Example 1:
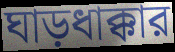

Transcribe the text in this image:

ঘাড়ধাক্কার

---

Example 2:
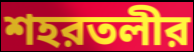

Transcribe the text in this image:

শহরতলীর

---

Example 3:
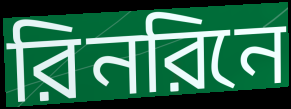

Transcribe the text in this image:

রিনরিনে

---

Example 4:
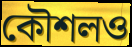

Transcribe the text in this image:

কৌশলও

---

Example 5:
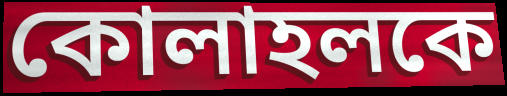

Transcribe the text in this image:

কোলাহলকে